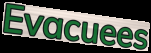
Evacuees